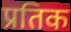
प्रतिक